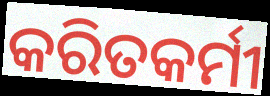
କରିତକର୍ମୀ